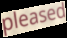
pleased